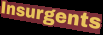
Insurgents